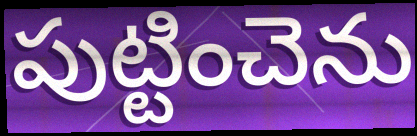
పుట్టించెను